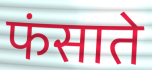
फंसाते